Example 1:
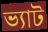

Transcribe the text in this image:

ভ্যাট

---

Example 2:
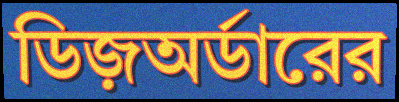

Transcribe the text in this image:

ডিজ়অর্ডারের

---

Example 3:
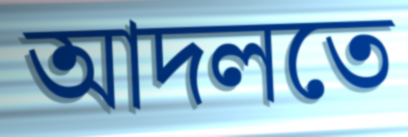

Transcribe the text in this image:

আদলতে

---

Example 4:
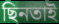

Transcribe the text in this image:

ছিনতাই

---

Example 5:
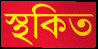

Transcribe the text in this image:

স্থকিত